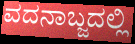
ವದನಾಬ್ಜದಲ್ಲಿ